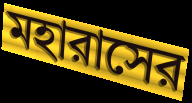
মহারাসের